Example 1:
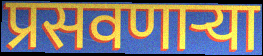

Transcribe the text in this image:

प्रसवणाऱ्या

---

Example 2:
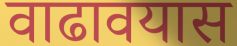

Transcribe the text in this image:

वाढावयास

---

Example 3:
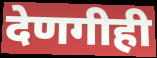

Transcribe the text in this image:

देणगीही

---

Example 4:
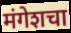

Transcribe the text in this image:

मंगेशचा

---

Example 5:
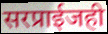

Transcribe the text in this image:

सरप्राईजही